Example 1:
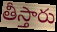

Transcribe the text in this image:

తీస్తారు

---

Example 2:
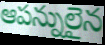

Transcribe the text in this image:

ఆపన్నులైన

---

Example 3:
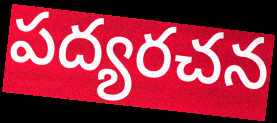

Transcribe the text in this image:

పద్యరచన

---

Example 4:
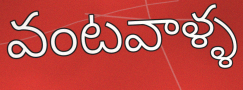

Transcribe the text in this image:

వంటవాళ్ళ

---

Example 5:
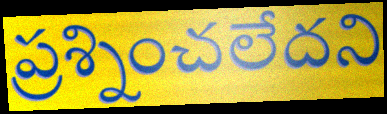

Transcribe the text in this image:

ప్రశ్నించలేదని